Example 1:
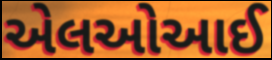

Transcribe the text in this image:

એલઓઆઈ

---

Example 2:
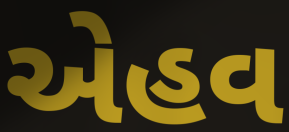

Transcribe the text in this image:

એહવ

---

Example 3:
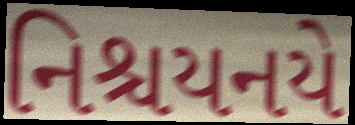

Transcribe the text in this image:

નિશ્ચયનયે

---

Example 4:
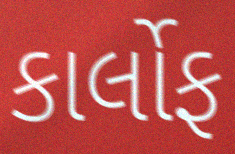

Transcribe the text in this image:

કાર્લોફ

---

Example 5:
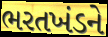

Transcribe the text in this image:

ભરતખંડને